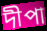
দীপা